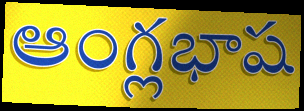
ఆంగ్లభాష